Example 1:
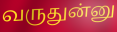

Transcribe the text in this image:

வருதுன்னு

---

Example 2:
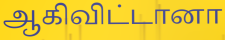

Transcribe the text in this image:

ஆகிவிட்டானா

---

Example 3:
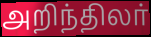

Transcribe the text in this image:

அறிந்திலர்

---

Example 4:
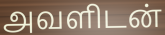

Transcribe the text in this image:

அவளிடன்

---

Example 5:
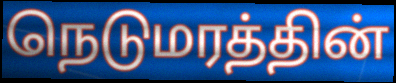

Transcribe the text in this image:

நெடுமரத்தின்